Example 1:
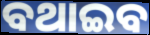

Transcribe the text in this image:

ବଥାଇବ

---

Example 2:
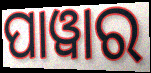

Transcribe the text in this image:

ପାୱାର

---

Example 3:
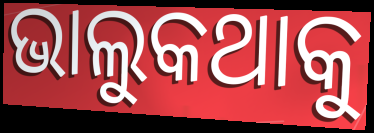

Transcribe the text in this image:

ଭାଲୁକଥାକୁ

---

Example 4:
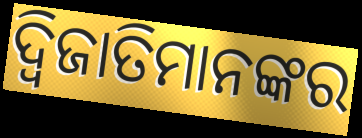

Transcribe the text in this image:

ଦ୍ୱିଜାତିମାନଙ୍କର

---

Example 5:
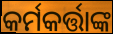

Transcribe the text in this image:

କର୍ମକର୍ତ୍ତାଙ୍କ